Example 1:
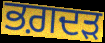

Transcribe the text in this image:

ਭਗ਼ਦੜ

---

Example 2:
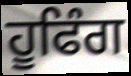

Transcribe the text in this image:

ਹੂਫਿੰਗ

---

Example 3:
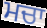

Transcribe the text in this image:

ਮਚਾ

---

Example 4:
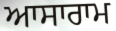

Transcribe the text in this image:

ਆਸਾਰਾਮ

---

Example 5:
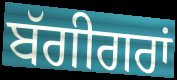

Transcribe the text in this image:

ਬੱਗੀਗਰਾਂ